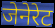
जेनेरेट